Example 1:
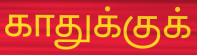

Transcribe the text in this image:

காதுக்குக்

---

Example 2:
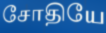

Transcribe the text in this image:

சோதியே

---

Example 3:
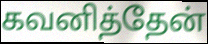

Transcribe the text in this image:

கவனித்தேன்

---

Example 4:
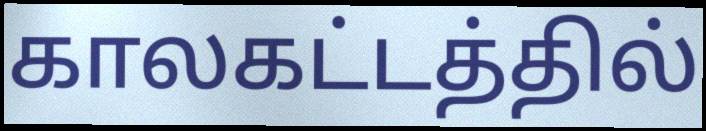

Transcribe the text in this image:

காலகட்டத்தில்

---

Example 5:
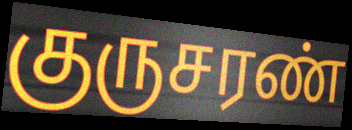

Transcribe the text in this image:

குருசரண்